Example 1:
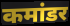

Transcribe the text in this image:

कमांडर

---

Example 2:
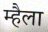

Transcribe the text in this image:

म्हैला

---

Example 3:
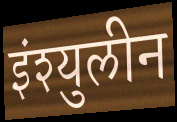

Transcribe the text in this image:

इंश्युलीन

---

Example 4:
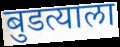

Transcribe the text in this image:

बुडत्याला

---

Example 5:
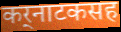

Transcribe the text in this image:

कर्नाटकसह